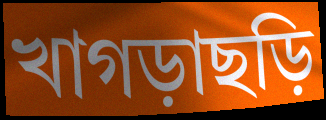
খাগড়াছড়ি